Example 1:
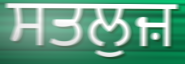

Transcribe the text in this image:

ਸਤਲੁਜ਼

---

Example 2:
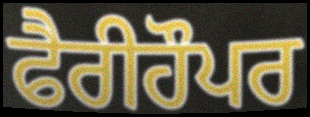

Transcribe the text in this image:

ਫੈਰੀਹੌਪਰ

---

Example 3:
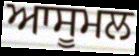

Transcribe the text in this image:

ਆਸੂਮਲ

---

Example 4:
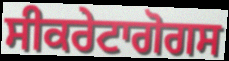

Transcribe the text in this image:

ਸੀਕਰੇਟਾਗੋਗਸ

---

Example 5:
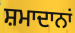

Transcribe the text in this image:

ਸ਼ਮਾਦਾਨਾਂ